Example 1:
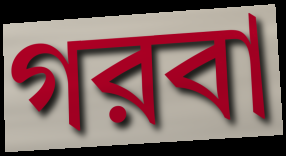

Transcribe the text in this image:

গরবা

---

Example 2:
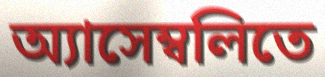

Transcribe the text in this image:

অ্যাসেম্বলিতে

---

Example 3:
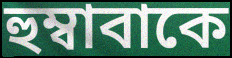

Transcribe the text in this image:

হুম্বাবাকে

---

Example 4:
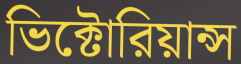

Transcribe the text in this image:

ভিক্টোরিয়ান্স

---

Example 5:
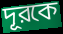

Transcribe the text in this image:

দূরকে